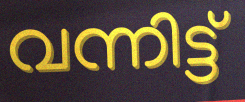
വന്നിട്ട്